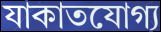
যাকাতযোগ্য